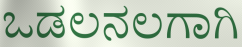
ಒಡಲನಲಗಾಗಿ